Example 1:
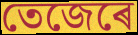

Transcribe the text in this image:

তেজেৰে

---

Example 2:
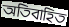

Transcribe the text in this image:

অতিবাহিত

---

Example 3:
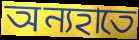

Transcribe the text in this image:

অন্যহাতে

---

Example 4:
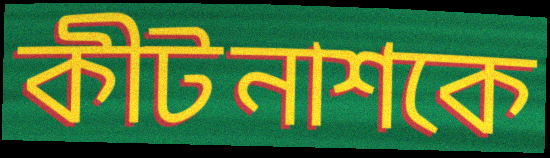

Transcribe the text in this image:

কীটনাশকে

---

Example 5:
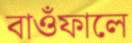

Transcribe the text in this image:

বাওঁফালে